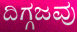
ದಿಗ್ಗಜವು